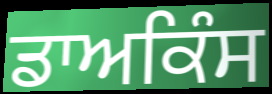
ਡਾਅਕਿੰਸ